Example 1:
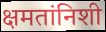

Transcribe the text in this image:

क्षमतांनिशी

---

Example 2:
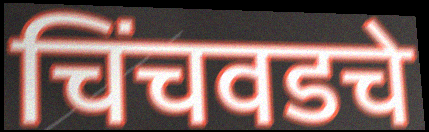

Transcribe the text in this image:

चिंचवडचे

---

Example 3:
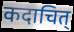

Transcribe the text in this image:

कदाचित्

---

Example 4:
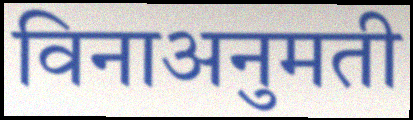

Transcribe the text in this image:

विनाअनुमती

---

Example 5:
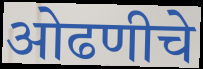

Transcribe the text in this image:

ओढणीचे